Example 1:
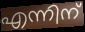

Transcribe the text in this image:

എന്നിന്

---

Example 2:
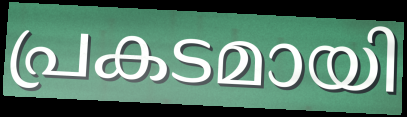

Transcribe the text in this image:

പ്രകടമായി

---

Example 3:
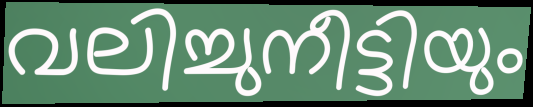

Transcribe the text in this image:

വലിച്ചുനീട്ടിയും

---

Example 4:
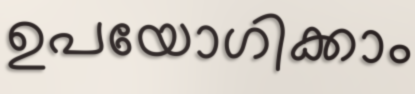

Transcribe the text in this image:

ഉപയോഗിക്കാം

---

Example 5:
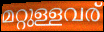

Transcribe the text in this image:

മറ്റുള്ളവര്